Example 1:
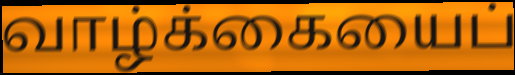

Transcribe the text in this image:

வாழ்க்கையைப்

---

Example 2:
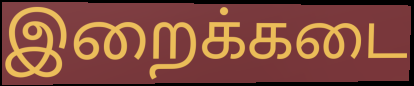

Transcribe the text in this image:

இறைக்கடை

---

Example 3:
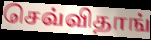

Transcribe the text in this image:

செவ்விதாங்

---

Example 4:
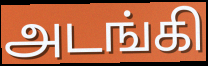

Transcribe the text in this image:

அடங்கி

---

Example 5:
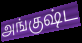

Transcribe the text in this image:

அங்குஷ்ட